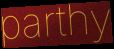
parthy